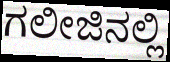
ಗಲೀಜಿನಲ್ಲಿ